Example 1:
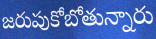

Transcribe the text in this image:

జరుపుకోబోతున్నారు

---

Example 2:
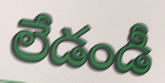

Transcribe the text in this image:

లేడండీ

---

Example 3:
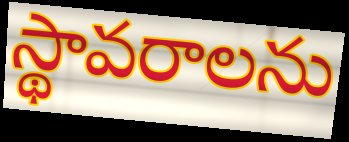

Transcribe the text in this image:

స్థావరాలను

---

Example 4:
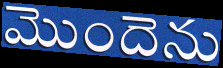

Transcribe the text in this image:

మొందెను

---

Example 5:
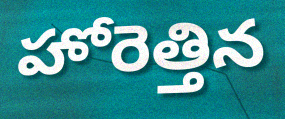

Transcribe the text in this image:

హోరెత్తిన